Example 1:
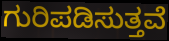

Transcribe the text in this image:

ಗುರಿಪಡಿಸುತ್ತವೆ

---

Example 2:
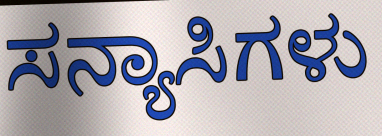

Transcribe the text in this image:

ಸನ್ಯಾಸಿಗಳು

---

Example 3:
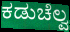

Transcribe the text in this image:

ಕಡುಚೆಲ್ವ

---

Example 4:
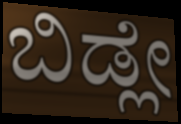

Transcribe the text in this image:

ಬಿಡ್ಲೇ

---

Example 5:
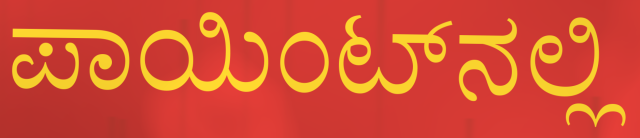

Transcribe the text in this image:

ಪಾಯಿಂಟ್‌ನಲ್ಲಿ